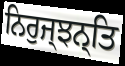
ਨਿਰੁਜ੍ਝਨ੍ਤਿ